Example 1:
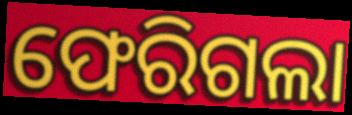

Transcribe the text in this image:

ଫେରିଗଲା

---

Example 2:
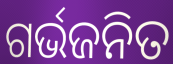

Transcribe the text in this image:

ଗର୍ଭଜନିତ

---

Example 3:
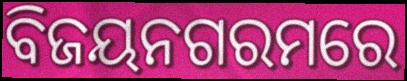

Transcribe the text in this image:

ବିଜୟନଗରମରେ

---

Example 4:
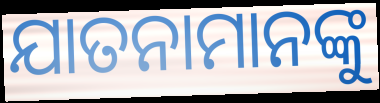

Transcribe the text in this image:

ଯାତନାମାନଙ୍କୁ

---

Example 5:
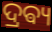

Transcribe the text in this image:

ଦ୍ରଵ୍ୟ